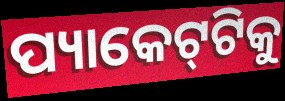
ପ୍ୟାକେଟ୍‌ଟିକୁ